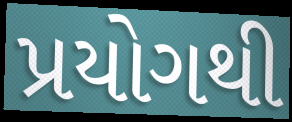
પ્રયોગથી